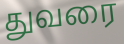
துவரை